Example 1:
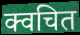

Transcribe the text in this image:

क्वचित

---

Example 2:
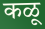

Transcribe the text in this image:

कळू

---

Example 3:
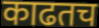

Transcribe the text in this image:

काढतच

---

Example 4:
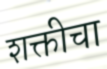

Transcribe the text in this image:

शक्तीचा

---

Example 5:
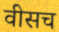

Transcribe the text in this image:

वीसच